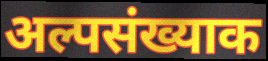
अल्पसंख्याक